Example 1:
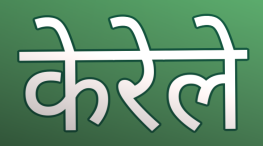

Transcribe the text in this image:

केरेले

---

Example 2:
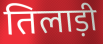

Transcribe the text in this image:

तिलाड़ी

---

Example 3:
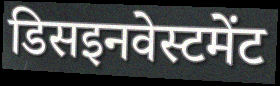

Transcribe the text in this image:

डिसइनवेस्टमेंट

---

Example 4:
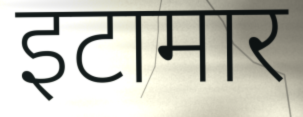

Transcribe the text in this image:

इटामार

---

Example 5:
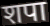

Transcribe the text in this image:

शपा